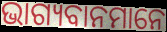
ଭାଗ୍ୟବାନମାନେ